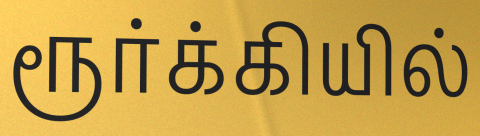
ரூர்க்கியில்